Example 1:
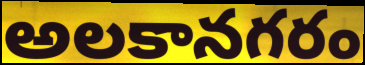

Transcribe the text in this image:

అలకానగరం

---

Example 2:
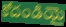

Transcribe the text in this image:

కోదండియై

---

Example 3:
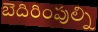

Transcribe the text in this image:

బెదిరింపుల్ని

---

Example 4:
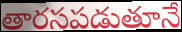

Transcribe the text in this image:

తారసపడుతూనే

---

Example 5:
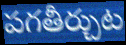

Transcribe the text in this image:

పగతీర్చుట